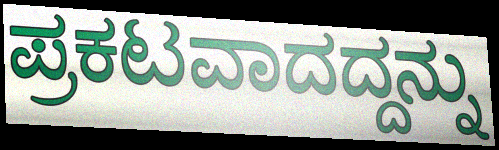
ಪ್ರಕಟವಾದದ್ದನ್ನು